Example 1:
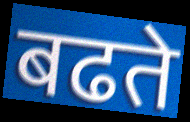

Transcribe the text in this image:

बढते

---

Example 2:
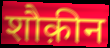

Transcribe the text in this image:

शौक़ीन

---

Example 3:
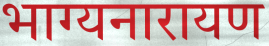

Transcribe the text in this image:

भाग्यनारायण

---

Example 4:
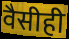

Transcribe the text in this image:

वैसीही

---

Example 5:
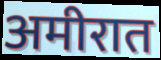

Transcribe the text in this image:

अमीरात